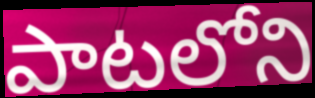
పాటలోని